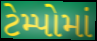
ટેમ્પોમાં